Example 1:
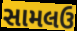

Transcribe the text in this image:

સામલઉ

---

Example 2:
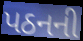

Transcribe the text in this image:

પઠનની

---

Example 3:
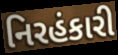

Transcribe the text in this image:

નિરહંકારી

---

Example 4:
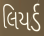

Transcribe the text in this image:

લિયર્ડ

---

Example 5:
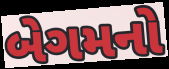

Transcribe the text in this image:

બેગમનો